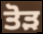
ਤੋੜ